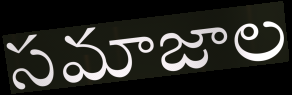
సమాజాల